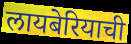
लायबेरियाची